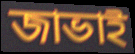
জাভাই